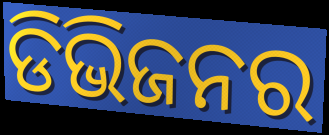
ଡିଭିଜନର